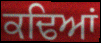
ਕਢਿਆਂ